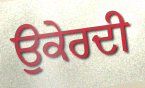
ਉਕੇਰਦੀ